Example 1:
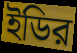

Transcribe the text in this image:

ইডির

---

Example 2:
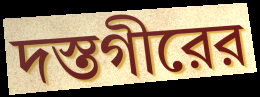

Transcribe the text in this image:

দস্তগীরের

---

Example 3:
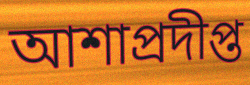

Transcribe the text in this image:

আশাপ্রদীপ্ত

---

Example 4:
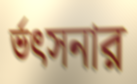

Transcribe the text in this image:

র্ভৎসনার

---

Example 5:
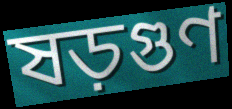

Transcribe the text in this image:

ষড়গুণ